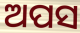
ଅପସ